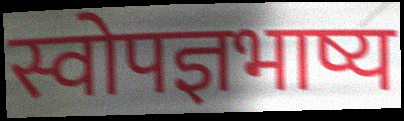
स्वोपज्ञभाष्य